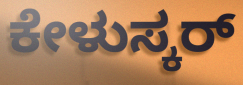
ಕೇಳುಸ್ಕರ್